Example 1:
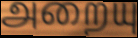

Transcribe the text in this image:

அறையு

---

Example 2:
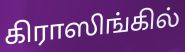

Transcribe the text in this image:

கிராஸிங்கில்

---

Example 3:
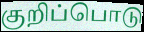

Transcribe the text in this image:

குறிப்பொடு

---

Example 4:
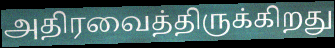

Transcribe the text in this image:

அதிரவைத்திருக்கிறது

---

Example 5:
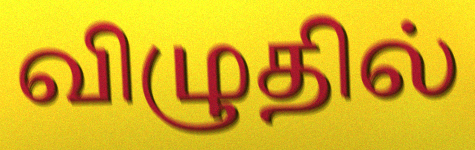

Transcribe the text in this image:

விழுதில்